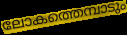
ലോകത്തെമ്പാടും